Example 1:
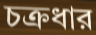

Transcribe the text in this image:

চক্রধার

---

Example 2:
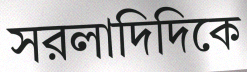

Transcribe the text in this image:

সরলাদিদিকে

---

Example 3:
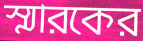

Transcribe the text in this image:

স্মারকের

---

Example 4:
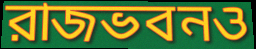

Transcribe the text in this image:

রাজভবনও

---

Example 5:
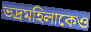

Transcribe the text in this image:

ভদ্রমহিলাকেও